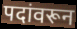
पदांवरून